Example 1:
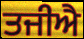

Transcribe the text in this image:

ਤਜੀਐ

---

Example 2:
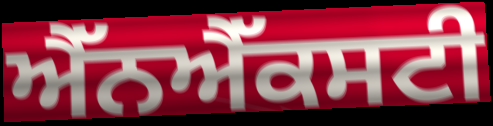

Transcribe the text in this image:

ਐੱਨਐੱਕਸਟੀ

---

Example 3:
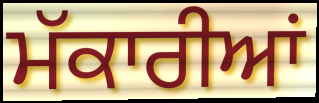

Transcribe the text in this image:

ਮੱਕਾਰੀਆਂ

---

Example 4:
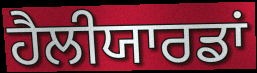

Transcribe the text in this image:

ਹੈਲੀਯਾਰਡਾਂ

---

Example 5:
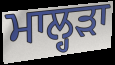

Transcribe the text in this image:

ਮਾਲ੍ਹੜਾ